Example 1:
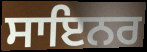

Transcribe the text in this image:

ਸਾਇਨਰ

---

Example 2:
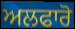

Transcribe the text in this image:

ਅਲਫਾਰੋ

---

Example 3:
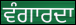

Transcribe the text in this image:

ਵੰਗਾਰਦਾ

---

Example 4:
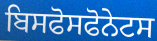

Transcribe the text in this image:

ਬਿਸਫੋਸਫੋਨੇਟਸ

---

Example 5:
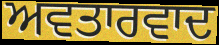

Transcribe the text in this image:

ਅਵਤਾਰਵਾਦ